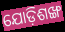
ଯୋଡ଼ିଶଙ୍ଖ